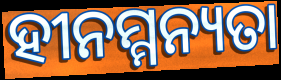
ହୀନମ୍ମନ୍ୟତା